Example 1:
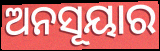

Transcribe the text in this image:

ଅନସୂୟାର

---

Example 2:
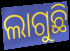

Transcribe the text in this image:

ଲାଗୁଛି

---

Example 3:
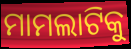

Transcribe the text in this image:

ମାମଲାଟିକୁ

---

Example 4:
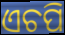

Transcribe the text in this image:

ଏଚପି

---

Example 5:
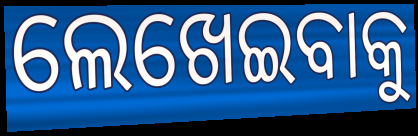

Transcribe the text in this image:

ଲେଖେଇବାକୁ